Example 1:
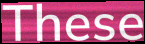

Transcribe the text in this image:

These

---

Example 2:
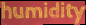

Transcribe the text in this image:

humidity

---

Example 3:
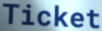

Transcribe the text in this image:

Ticket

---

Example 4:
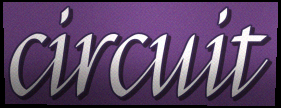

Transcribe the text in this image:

circuit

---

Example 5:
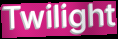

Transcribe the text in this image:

Twilight